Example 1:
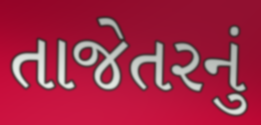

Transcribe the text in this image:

તાજેતરનું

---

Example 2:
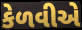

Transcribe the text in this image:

કેળવીએ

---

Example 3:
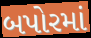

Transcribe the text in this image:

બપોરમાં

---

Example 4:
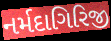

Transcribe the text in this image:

નર્મદાગિરિજી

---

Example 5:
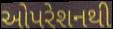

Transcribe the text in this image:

ઓપરેશનથી